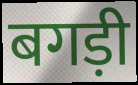
बगड़ी